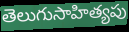
తెలుగుసాహిత్యపు